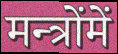
मन्त्रोंमें